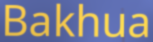
Bakhua